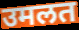
उमलत